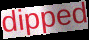
dipped